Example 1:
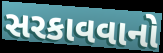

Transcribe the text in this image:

સરકાવવાનો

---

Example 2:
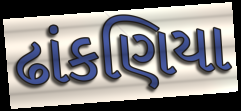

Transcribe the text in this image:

ઢાંકણિયા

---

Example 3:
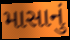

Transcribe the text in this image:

માસાનું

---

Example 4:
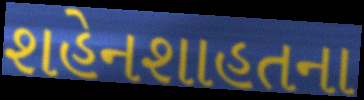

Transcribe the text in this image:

શહેનશાહતના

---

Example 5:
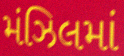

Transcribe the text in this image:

મંઝિલમાં